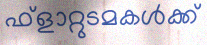
ഫ്ളാറ്റുടമകൾക്ക്